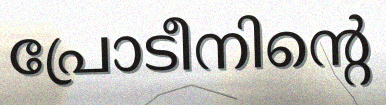
പ്രോടീനിന്റെ